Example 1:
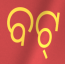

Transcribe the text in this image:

ବଟ୍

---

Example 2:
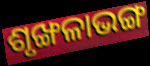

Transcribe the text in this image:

ଶୃଙ୍ଖଳାଭଙ୍ଗ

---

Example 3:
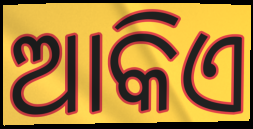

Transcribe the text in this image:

ଆକିଏ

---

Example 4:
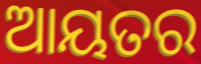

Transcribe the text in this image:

ଆୟତର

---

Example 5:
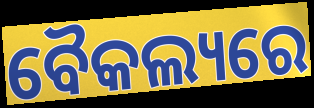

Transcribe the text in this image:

ବୈକଲ୍ୟରେ